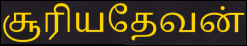
சூரியதேவன்